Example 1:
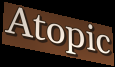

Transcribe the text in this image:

Atopic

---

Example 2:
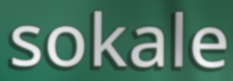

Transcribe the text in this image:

sokale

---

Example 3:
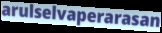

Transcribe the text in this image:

arulselvaperarasan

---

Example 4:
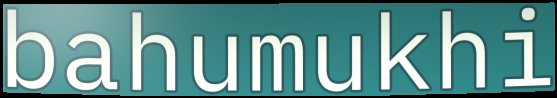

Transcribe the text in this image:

bahumukhi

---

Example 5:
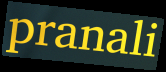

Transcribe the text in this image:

pranali